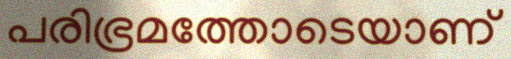
പരിഭ്രമത്തോടെയാണ്